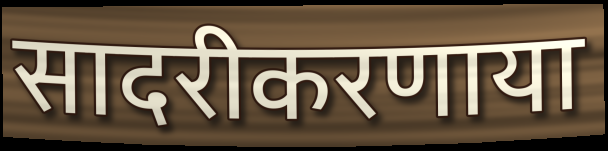
सादरीकरणाया